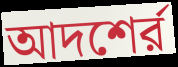
আদশের্র